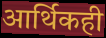
आर्थिकही